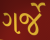
ગર્જે